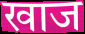
खाज